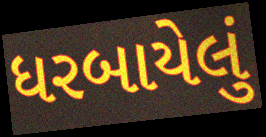
ધરબાયેલું